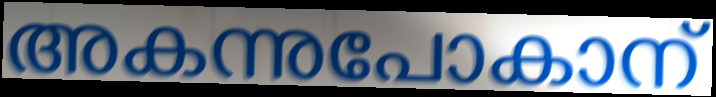
അകന്നുപോകാന്